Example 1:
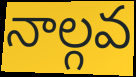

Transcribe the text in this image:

నాల్గవ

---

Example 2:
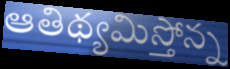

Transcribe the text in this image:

ఆతిథ్యమిస్తోన్న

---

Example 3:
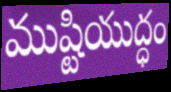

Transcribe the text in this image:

ముష్టియుద్ధం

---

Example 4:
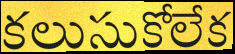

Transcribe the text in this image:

కలుసుకోలేక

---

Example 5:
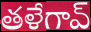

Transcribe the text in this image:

తళేగావ్